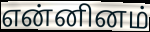
என்னினம்